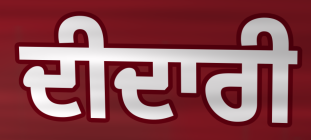
ਦੀਦਾਰੀ